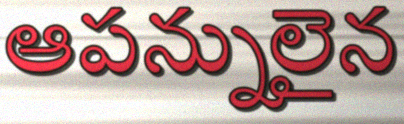
ఆపన్నులైన